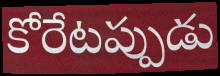
కోరేటప్పుడు